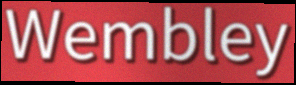
Wembley